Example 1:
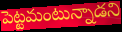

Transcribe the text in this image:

పెట్టమంటున్నాడని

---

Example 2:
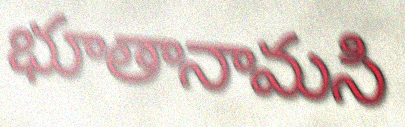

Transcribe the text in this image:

భూతానామసి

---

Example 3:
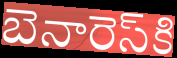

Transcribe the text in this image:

బెనారెస్‌కి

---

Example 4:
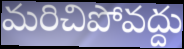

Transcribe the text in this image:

మరిచిపోవద్దు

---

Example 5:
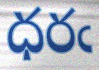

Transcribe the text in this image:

ధరఁ